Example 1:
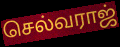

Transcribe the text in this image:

செல்வராஜ்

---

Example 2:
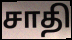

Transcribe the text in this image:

சாதி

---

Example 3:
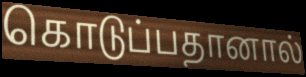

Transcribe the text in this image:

கொடுப்பதானால்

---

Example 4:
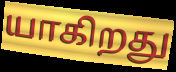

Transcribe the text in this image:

யாகிறது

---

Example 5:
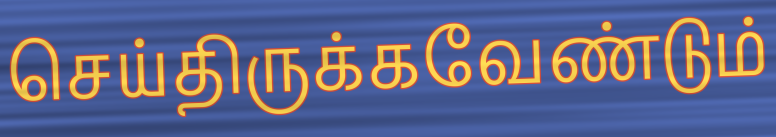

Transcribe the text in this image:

செய்திருக்கவேண்டும்